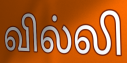
வில்லி